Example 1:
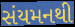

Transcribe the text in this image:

સંયમનથી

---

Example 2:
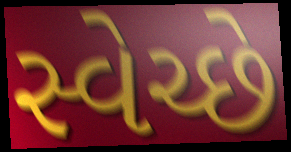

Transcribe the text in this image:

સ્વેચ્છે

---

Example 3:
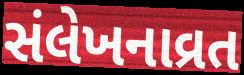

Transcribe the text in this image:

સંલેખનાવ્રત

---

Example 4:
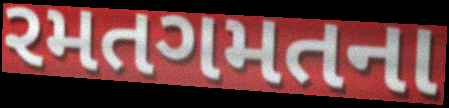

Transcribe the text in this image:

રમતગમતના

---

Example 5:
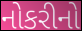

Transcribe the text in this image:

નોકરીનો